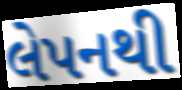
લેપનથી